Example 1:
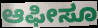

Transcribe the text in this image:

ಆಫೀಸೂ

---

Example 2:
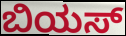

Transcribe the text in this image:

ಬಿಯಸ್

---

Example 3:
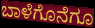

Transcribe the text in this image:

ಬಾಳೆಗೊನೆಗೂ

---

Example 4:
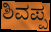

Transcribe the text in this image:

ಶಿವಪ್ಪ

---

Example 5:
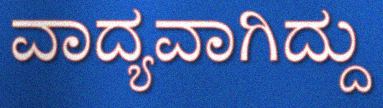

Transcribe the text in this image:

ವಾದ್ಯವಾಗಿದ್ದು